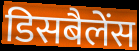
डिसबैलेंस